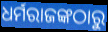
ଧର୍ମରାଜଙ୍କଠାରୁ